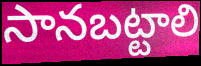
సానబట్టాలి